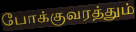
போக்குவரத்தும்